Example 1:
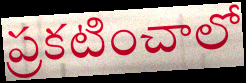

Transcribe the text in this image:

ప్రకటించాలో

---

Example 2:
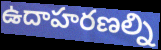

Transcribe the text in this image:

ఉదాహరణల్ని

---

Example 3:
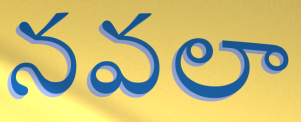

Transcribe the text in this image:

నవలా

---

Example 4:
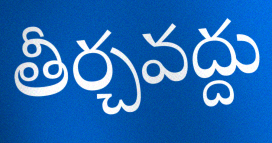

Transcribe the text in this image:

తీర్చవద్దు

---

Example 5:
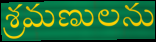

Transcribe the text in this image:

శ్రమణులను